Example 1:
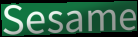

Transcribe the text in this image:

Sesame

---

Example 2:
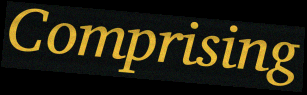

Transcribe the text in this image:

Comprising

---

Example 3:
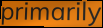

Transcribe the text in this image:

primarily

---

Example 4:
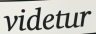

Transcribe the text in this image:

videtur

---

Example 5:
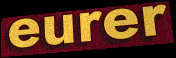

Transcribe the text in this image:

eurer